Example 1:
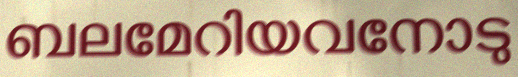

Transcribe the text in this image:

ബലമേറിയവനോടു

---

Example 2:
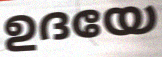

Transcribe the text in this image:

ഉദയേ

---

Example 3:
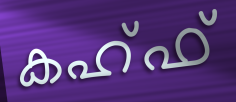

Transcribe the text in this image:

കഹ്ഫ്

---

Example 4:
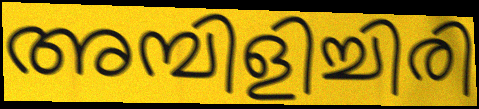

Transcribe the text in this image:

അമ്പിളിച്ചിരി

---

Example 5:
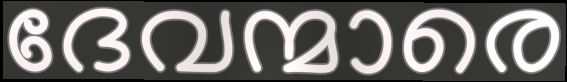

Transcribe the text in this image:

ദേവന്മാരെ